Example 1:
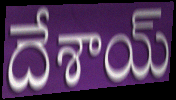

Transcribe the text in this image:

దేశాయ్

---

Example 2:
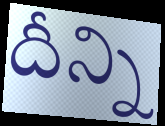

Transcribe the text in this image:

దీన్ని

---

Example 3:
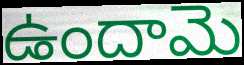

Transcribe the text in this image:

ఉందామె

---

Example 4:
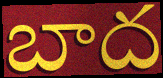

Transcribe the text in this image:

బాద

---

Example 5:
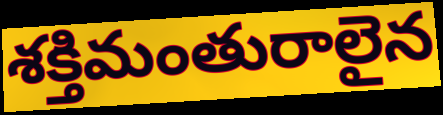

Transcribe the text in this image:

శక్తిమంతురాలైన